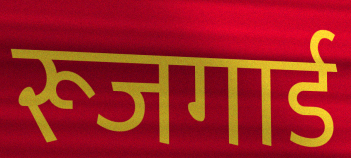
रूजगार्ड